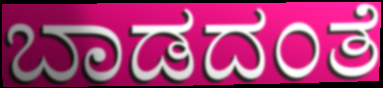
ಬಾಡದಂತೆ